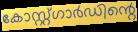
കോസ്റ്റ്ഗാർഡിന്റെ